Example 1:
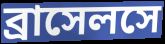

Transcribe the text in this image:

ব্রাসেলসে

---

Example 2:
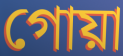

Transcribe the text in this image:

গোয়া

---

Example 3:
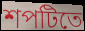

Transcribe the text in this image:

শপটিতে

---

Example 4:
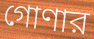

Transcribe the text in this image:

গোণার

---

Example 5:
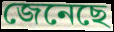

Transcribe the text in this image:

জেনেছে